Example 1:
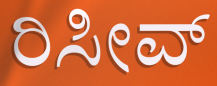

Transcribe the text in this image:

ರಿಸೀವ್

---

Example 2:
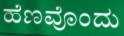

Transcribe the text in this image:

ಹೆಣವೊಂದು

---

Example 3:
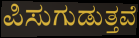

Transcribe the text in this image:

ಪಿಸುಗುಡುತ್ತವೆ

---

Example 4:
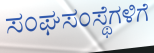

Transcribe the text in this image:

ಸಂಘಸಂಸ್ಥೆಗಳಿಗೆ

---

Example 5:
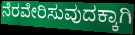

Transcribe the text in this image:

ನೆರವೇರಿಸುವುದಕ್ಕಾಗಿ